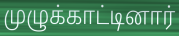
முழுக்காட்டினார்